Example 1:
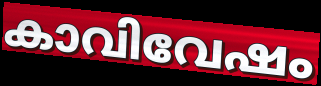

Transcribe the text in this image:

കാവിവേഷം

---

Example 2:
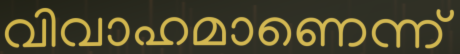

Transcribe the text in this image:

വിവാഹമാണെന്ന്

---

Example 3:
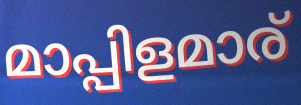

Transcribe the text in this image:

മാപ്പിളമാര്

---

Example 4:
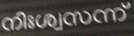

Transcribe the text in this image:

നിഃശ്വസന്ന്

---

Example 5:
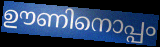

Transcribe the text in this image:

ഊണിനൊപ്പം